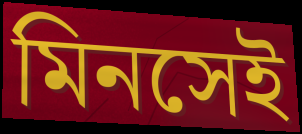
মিনসেই